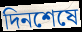
দিনশেষে